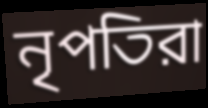
নৃপতিরা